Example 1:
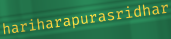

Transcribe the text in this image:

hariharapurasridhar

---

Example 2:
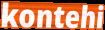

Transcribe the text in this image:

kontehi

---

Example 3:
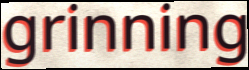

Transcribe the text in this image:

grinning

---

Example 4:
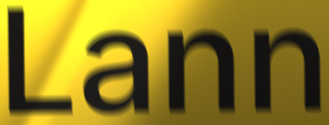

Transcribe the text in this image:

Lann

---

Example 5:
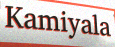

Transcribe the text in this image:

Kamiyala